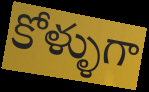
కోళ్ళుగా